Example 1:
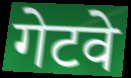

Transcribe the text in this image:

गेटवे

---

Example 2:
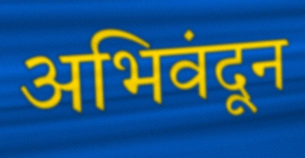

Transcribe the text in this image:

अभिवंदून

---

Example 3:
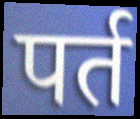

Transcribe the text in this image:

पर्त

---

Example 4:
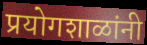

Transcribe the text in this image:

प्रयोगशाळांनी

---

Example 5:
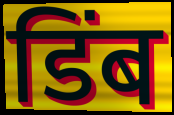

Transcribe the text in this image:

डिंब